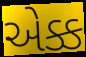
એક્ક